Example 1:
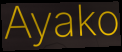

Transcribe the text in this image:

Ayako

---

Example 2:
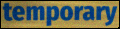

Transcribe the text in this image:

temporary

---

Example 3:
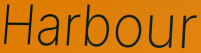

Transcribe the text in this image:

Harbour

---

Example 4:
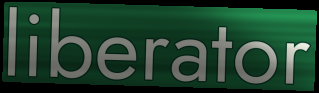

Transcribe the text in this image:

liberator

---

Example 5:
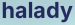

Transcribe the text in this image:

halady